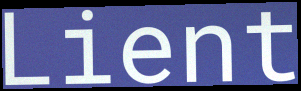
Lient